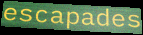
escapades